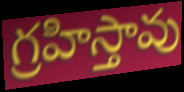
గ్రహిస్తావు